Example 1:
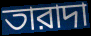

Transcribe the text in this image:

তারাদা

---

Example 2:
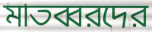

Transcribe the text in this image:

মাতব্বরদের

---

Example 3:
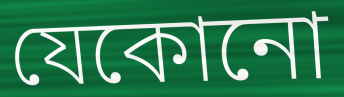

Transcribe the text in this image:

যেকোনো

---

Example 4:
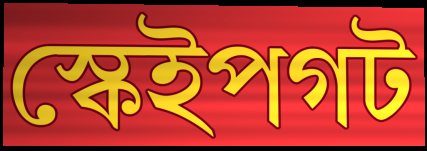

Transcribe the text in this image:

স্কেইপগট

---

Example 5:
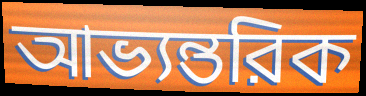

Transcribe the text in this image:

আভ্যন্তরিক